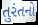
તુરંતનો